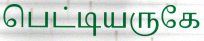
பெட்டியருகே